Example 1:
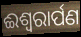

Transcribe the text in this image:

ଈଶ୍ୱରାର୍ପଣ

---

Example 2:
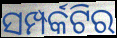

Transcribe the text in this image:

ସମ୍ପର୍କଟିର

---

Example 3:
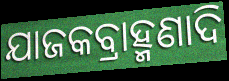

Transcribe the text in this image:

ଯାଜକବ୍ରାହ୍ମଣାଦି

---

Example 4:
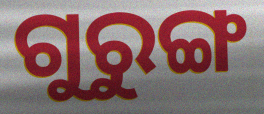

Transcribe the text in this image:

ଗୁରୁଙ୍ଗ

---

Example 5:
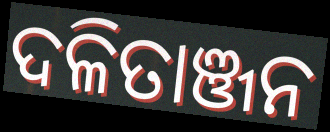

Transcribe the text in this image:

ଦଳିତାଞ୍ଜନ